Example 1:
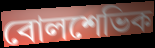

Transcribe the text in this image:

বোলশেভিক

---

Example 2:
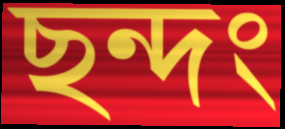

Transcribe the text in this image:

ছন্দং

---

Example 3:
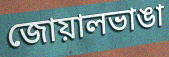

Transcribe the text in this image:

জোয়ালভাঙা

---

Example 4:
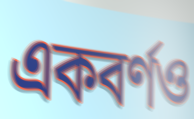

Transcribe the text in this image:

একবর্ণও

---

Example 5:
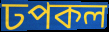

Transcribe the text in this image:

ঢপকল